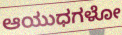
ಆಯುಧಗಳೋ